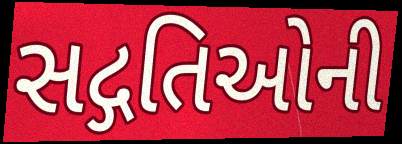
સદ્ગતિઓની